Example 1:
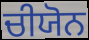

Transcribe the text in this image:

ਚੀਯੋਨ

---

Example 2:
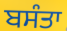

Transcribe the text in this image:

ਬਸੰਤਾ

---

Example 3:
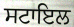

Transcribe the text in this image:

ਸਟਾਇਲ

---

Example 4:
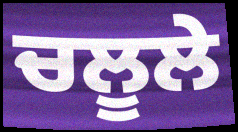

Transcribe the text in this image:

ਚਲੂਲੇ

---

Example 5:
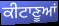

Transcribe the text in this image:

ਕੀਟਾਣੂਆਂ